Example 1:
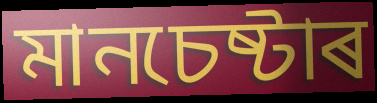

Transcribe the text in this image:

মানচেষ্টাৰ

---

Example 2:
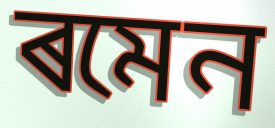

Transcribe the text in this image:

ৰমেন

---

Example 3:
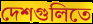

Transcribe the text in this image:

দেশগুলিতে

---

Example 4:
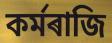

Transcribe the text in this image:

কৰ্মৰাজি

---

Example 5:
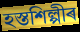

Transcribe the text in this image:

হস্তশিল্পীৰ